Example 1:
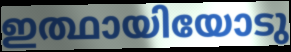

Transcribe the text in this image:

ഇത്ഥായിയോടു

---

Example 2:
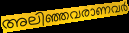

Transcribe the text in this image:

അലിഞ്ഞവരാണവർ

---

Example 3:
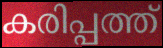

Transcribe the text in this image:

കരിപ്പത്ത്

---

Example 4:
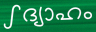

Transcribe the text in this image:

ഽദ്യാഹം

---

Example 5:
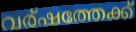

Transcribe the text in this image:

വര്ഷത്തേക്ക്